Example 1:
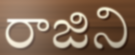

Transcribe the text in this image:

రాజిని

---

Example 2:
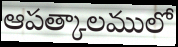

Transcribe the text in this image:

ఆపత్కాలములో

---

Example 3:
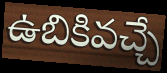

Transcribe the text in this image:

ఉబికివచ్చే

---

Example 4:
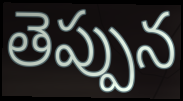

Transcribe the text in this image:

తెప్పున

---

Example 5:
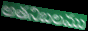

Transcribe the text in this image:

అతనిబలము